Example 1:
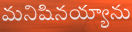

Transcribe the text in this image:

మనిషినయ్యాను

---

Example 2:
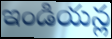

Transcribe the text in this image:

ఇండియన్ల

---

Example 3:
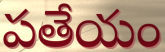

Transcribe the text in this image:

పతేయం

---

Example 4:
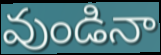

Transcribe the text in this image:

వుండినా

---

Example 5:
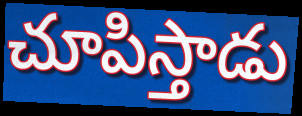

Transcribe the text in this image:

చూపిస్తాడు